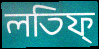
লতিফ্